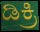
ಡಿಕ್ರಿ